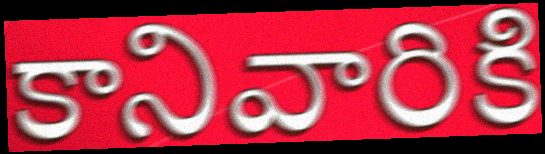
కానివారికి